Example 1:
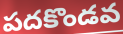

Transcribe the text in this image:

పదకొండవ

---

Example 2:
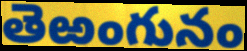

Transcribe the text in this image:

తెఱంగునం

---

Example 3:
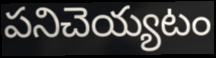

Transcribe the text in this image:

పనిచెయ్యటం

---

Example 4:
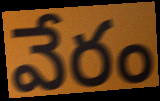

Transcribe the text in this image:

వేరం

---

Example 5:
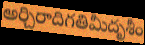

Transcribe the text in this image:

అర్చిరాదిగతిమీదృశీం